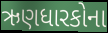
ઋણધારકોના